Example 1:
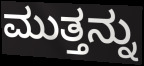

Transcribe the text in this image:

ಮುತ್ತನ್ನು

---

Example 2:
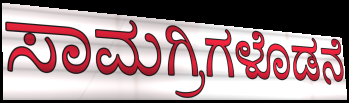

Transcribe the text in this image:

ಸಾಮಗ್ರಿಗಳೊಡನೆ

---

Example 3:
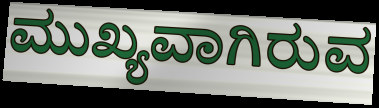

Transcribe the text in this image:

ಮುಖ್ಯವಾಗಿರುವ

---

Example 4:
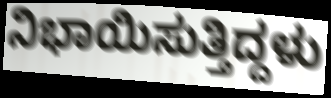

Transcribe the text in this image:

ನಿಭಾಯಿಸುತ್ತಿದ್ದಳು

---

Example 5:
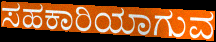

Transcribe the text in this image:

ಸಹಕಾರಿಯಾಗುವ